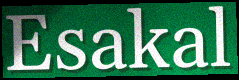
Esakal